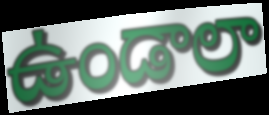
ఉండాలా